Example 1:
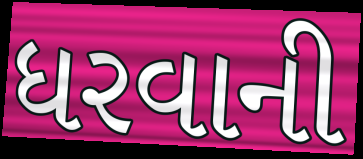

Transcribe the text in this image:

ધરવાની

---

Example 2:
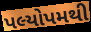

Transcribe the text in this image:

પલ્યોપમથી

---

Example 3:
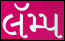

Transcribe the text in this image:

લૅમ્પ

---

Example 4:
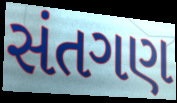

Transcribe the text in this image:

સંતગણ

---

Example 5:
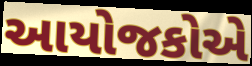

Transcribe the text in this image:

આયોજકોએ